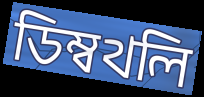
ডিম্বথলি